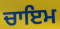
ਚਾਇਮ